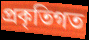
প্রকৃতিগত